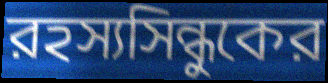
রহস্যসিন্ধুকের